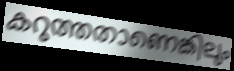
കറുത്തതാണെങ്കിലും